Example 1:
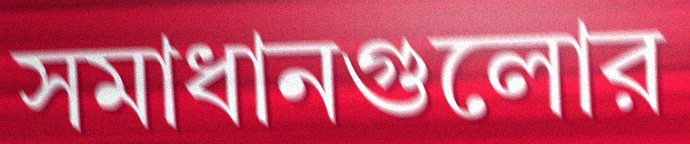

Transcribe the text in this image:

সমাধানগুলোর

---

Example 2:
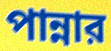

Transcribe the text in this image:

পান্নার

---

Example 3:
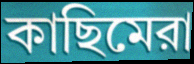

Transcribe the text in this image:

কাছিমেরা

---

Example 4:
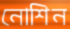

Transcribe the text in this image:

নোশিন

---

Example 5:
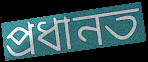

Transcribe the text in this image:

প্রধানত